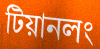
টিয়ানলং